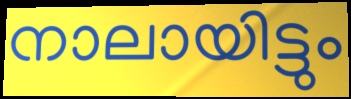
നാലായിട്ടും